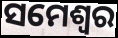
ସମେଶ୍ୱର